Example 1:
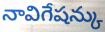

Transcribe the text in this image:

నావిగేషన్కు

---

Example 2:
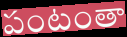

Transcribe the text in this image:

పంటంతా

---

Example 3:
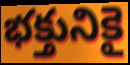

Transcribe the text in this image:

భక్తునికై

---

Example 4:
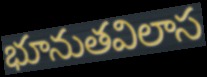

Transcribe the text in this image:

భూనుతవిలాస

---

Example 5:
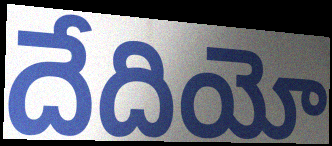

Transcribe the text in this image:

దేదియో